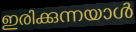
ഇരിക്കുന്നയാൾ